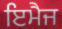
ਇਮੈਜ